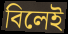
বিলেই